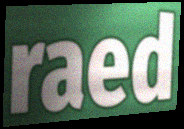
raed